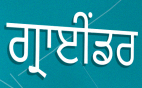
ਗ੍ਰਾਈਂਡਰ